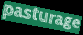
pasturage